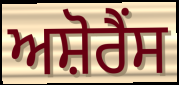
ਅਸ਼ੋਰੈਂਸ